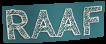
RAAF